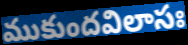
ముకుందవిలాసః